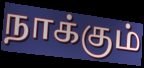
நாக்கும்